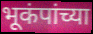
भूकंपांच्या